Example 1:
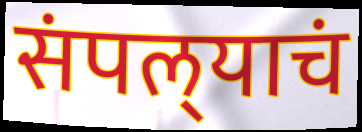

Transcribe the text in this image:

संपल्याचं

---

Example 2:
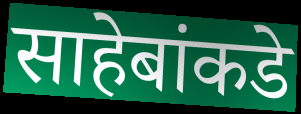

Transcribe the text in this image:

साहेबांकडे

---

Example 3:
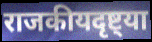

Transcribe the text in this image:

राजकीयदृष्ट्या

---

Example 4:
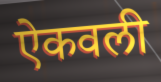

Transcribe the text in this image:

ऐकवली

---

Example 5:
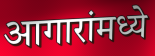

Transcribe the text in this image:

आगारांमध्ये